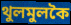
থুলমুলকৈ